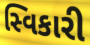
સ્વિકારી